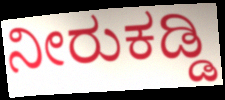
ನೀರುಕಡ್ಡಿ